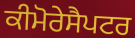
ਕੀਮੋਰੇਸੈਪਟਰ